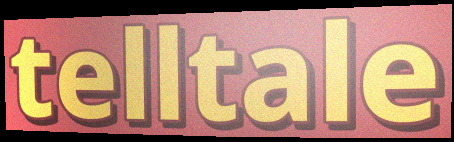
telltale